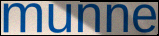
munne